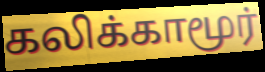
கலிக்காமூர்